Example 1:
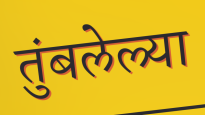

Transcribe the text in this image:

तुंबलेल्या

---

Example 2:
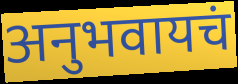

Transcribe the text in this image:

अनुभवायचं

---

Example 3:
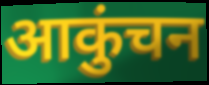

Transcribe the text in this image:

आकुंचन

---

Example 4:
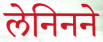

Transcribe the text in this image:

लेनिनने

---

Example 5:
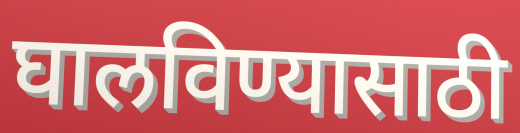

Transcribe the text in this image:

घालविण्यासाठी